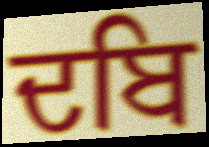
ਦਬਿ